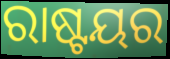
ରାଷ୍ଟୟର